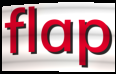
flap